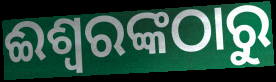
ଈଶ୍ଵରଙ୍କଠାରୁ